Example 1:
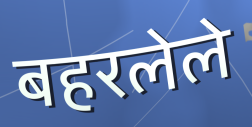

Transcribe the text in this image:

बहरलेले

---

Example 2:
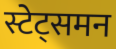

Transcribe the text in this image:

स्टेट्समन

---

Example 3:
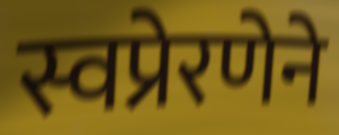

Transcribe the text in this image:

स्वप्रेरणेने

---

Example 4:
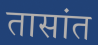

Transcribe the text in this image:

तासांत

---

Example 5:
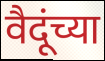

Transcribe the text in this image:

वैदूंच्या